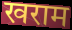
खराम